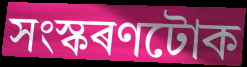
সংস্কৰণটোক